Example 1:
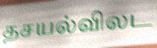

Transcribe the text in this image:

தசயல்விலட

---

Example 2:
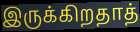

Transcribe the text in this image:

இருக்கிறதாத்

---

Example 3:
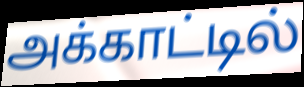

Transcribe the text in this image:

அக்காட்டில்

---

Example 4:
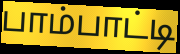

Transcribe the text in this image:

பாம்பாட்டி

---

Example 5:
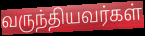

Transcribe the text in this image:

வருந்தியவர்கள்